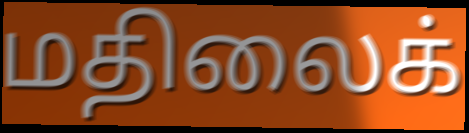
மதிலைக்